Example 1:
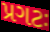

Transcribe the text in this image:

પ્રગટઃ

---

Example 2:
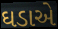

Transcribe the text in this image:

ઘડાએ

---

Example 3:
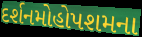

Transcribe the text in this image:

દર્શનમોહોપશમના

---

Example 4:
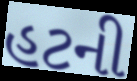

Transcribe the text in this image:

હટની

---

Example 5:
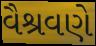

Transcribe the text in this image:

વૈશ્રવણે